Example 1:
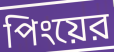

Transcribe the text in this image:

পিংয়ের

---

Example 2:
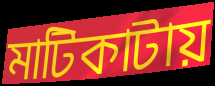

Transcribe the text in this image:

মাটিকাটায়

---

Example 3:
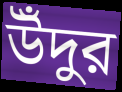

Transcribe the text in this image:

উঁদুর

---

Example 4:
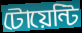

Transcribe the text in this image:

টোয়েন্টি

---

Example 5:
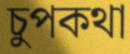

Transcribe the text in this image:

চুপকথা